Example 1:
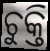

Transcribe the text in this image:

ଚୁକ୍ତି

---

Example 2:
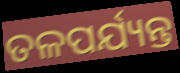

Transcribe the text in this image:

ତଳପର୍ଯ୍ୟନ୍ତ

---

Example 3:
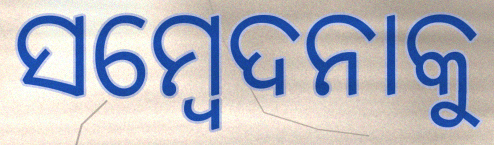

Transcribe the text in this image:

ସମ୍ବେଦନାକୁ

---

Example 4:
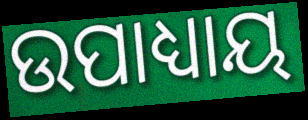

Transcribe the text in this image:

ଉପାଧ୍ୟାୟ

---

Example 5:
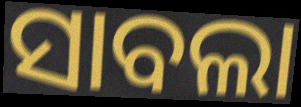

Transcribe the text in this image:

ସାବଲା